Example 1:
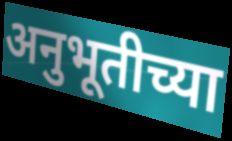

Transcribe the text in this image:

अनुभूतीच्या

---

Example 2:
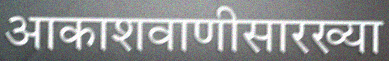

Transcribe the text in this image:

आकाशवाणीसारख्या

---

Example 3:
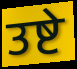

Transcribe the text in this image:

उष्टे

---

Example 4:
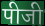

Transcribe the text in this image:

पीजी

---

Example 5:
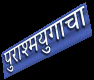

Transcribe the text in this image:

पुराश्मयुगाचा